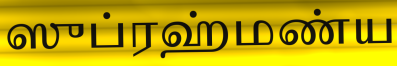
ஸுப்ரஹ்மண்ய